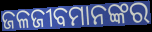
ଜଳଜୀବମାନଙ୍କର